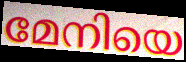
മേനിയെ